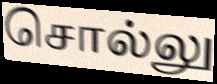
சொல்லு